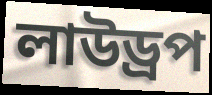
লাউড্রপ